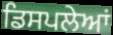
ਡਿਸਪਲੇਆਂ